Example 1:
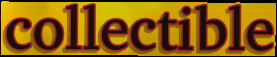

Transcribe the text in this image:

collectible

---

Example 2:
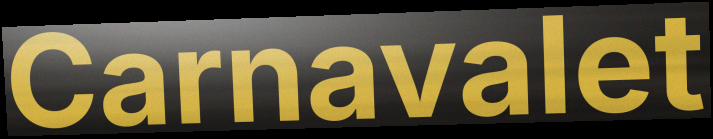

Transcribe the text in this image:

Carnavalet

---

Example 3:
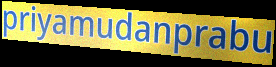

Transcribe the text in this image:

priyamudanprabu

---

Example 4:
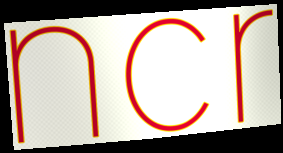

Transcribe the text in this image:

ncr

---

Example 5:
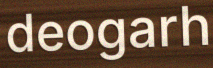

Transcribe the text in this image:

deogarh